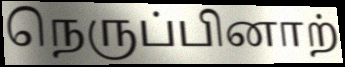
நெருப்பினாற்